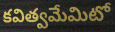
కవిత్వమేమిటో